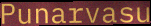
Punarvasu